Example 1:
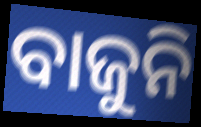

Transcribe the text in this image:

ବାଜୁନି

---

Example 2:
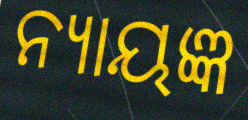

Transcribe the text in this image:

ନ୍ୟାୟଜ୍ଞ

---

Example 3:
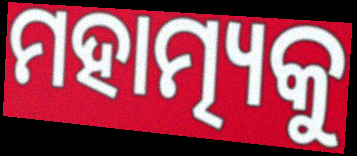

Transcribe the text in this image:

ମହାତ୍ମ୍ୟକୁ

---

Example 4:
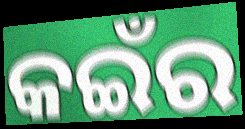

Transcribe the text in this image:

କଇଁର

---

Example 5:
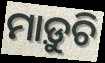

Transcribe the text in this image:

ମାଡ଼ୁଚି